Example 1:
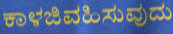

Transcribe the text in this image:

ಕಾಳಜಿವಹಿಸುವುದು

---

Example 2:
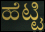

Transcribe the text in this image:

ಹೆಟ್ಟಿ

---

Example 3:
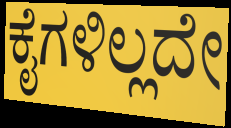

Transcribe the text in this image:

ಕೈಗಳಿಲ್ಲದೇ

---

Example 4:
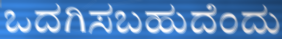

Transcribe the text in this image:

ಒದಗಿಸಬಹುದೆಂದು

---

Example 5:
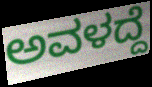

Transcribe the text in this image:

ಅವಳದ್ದೆ